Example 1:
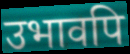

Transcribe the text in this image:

उभावपि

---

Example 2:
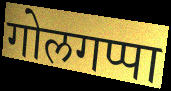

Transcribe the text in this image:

गोलगप्पा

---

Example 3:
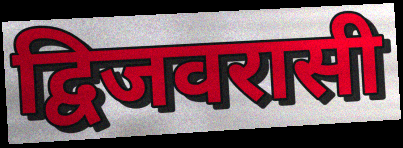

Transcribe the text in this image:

द्विजवरासी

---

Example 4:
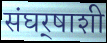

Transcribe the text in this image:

संघर्षाशी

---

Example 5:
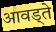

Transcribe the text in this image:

आवड्ते